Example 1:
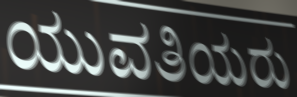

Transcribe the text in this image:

ಯುವತಿಯರು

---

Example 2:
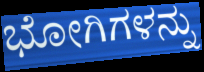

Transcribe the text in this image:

ಭೋಗಿಗಳನ್ನು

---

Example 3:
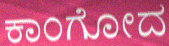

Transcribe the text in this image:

ಕಾಂಗೋದ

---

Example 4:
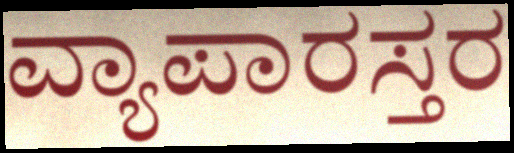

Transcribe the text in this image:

ವ್ಯಾಪಾರಸ್ತರ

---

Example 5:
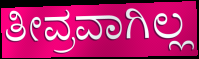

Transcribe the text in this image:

ತೀವ್ರವಾಗಿಲ್ಲ